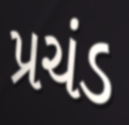
પ્રચંડ